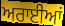
ਅਰਾਈਆਂ